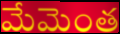
మేమెంత